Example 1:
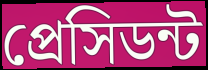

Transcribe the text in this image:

প্রেসিডন্ট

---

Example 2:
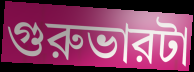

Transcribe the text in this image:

গুরুভারটা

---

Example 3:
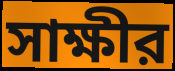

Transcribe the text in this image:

সাক্ষীর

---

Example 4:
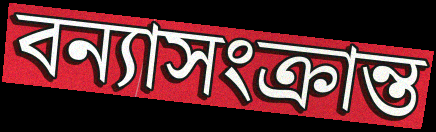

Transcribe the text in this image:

বন্যাসংক্রান্ত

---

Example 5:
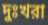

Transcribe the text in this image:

দুঃখরা